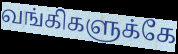
வங்கிகளுக்கே